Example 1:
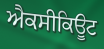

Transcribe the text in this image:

ਐਕਸੀਕਿਊਟ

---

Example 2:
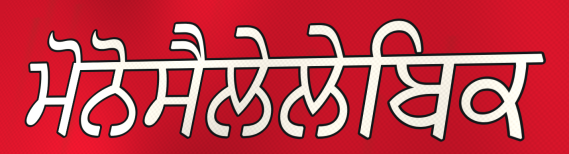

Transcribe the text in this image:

ਮੋਨੋਸੈਲੇਲੇਬਿਕ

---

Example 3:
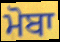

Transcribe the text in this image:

ਮੋਬਾ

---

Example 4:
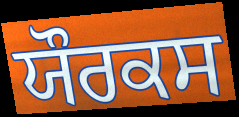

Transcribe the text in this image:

ਯੌਰਕਸ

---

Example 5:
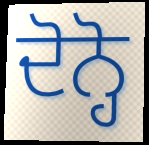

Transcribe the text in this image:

ਦੋਨ੍ਹੋ